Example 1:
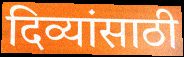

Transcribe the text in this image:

दिव्यांसाठी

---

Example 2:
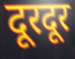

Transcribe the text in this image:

दूरदूर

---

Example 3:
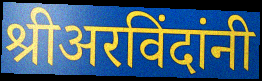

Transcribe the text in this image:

श्रीअरविंदांनी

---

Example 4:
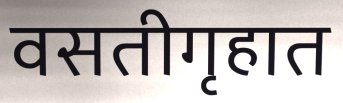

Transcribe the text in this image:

वसतीगृहात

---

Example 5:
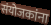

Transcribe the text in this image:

संयोजकांना